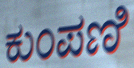
ಕುಂಪಣಿ